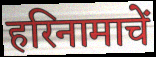
हरिनामाचें